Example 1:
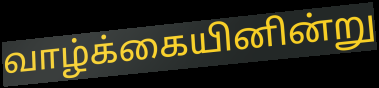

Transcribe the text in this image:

வாழ்க்கையினின்று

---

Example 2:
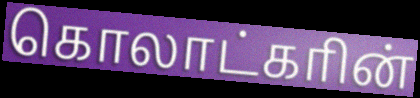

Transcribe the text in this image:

கொலாட்கரின்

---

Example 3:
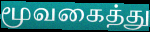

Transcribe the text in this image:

மூவகைத்து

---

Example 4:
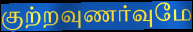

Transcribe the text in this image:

குற்றவுணர்வுமே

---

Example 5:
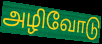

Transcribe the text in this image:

அழிவோடு